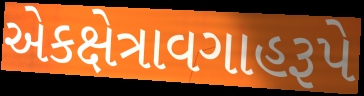
એકક્ષેત્રાવગાહરૂપે